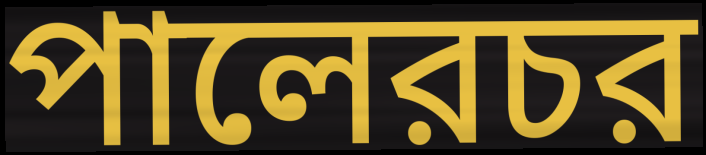
পালেরচর